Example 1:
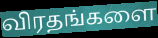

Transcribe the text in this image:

விரதங்களை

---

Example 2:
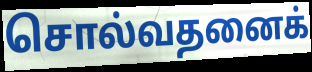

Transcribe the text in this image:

சொல்வதனைக்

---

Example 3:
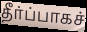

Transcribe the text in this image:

தீர்ப்பாகச்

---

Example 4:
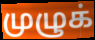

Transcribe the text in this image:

முழுக்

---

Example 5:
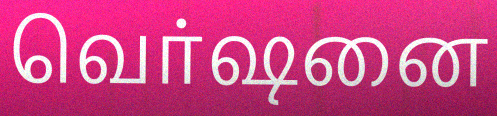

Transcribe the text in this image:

வெர்ஷனை